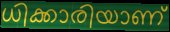
ധിക്കാരിയാണ്